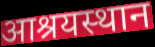
आश्रयस्थान